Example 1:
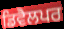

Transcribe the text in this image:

ਡਿਵੈਲਪਰ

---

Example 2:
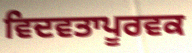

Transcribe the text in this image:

ਵਿਦਵਤਾਪੂਰਵਕ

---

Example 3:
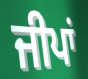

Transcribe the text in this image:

ਜੀਪਾਂ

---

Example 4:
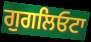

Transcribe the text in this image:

ਗੁਗਲਿਓਟਾ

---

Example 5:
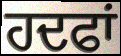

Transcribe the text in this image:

ਹਦਫਾਂ